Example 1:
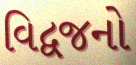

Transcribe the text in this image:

વિદ્વજનો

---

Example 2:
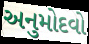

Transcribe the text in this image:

અનુમોદવો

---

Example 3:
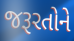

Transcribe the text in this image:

જરૂરતોને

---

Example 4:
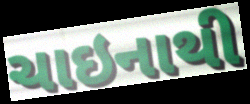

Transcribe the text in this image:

ચાઇનાથી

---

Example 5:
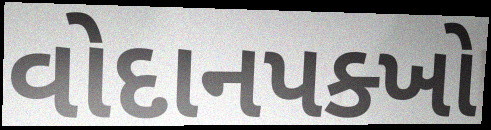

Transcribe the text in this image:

વોદાનપક્ખો